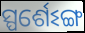
ସ୍ପର୍ଶେଽଙ୍ଗ